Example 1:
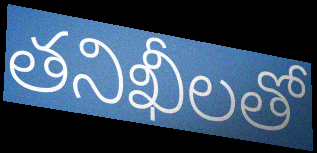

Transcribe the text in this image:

తనిఖీలతో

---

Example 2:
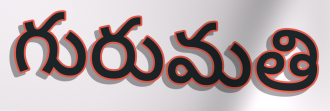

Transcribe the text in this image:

గురుమతి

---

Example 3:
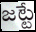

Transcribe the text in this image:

జట్టే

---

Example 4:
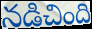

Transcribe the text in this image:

నడిచింది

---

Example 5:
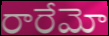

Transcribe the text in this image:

రారేమో